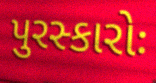
પુરસ્કારોઃ